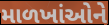
માળખાંઓને